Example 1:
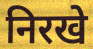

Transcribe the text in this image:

निरखे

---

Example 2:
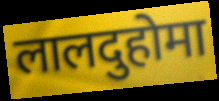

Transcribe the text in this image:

लालदुहोमा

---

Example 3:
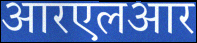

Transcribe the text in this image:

आरएलआर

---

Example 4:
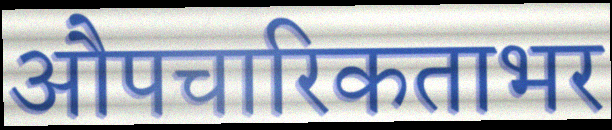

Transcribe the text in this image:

औपचारिकताभर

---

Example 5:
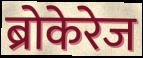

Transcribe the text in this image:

ब्रोकेरेज